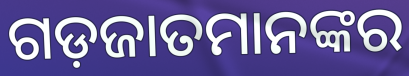
ଗଡ଼ଜାତମାନଙ୍କର